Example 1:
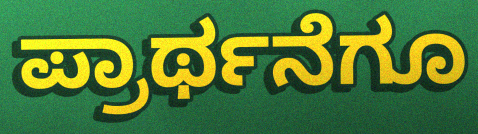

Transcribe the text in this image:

ಪ್ರಾರ್ಥನೆಗೂ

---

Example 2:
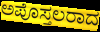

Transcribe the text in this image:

ಅಪೊಸ್ತಲರಾದ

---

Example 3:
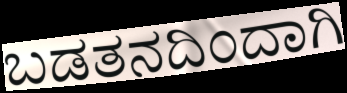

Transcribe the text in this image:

ಬಡತನದಿಂದಾಗಿ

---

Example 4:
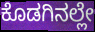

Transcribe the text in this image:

ಕೊಡಗಿನಲ್ಲೇ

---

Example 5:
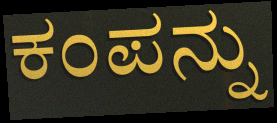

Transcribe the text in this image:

ಕಂಪನ್ನು